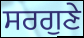
ਸਰਗੁਣੇ